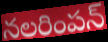
నలరింపన్